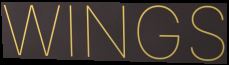
WINGS